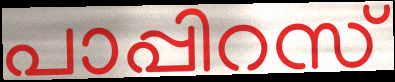
പാപ്പിറസ്